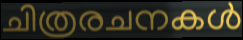
ചിത്രരചനകൾ